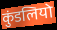
कुंडलियो